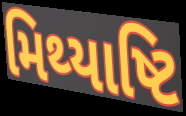
મિથ્યાષ્ટિ